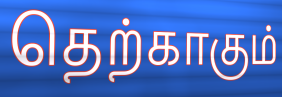
தெற்காகும்